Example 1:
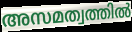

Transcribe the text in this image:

അസമത്വത്തിൽ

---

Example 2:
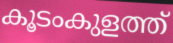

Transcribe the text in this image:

കൂടംകുളത്ത്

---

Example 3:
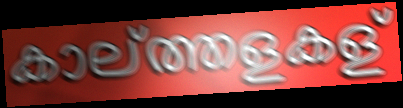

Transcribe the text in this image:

കാല്ത്തളകള്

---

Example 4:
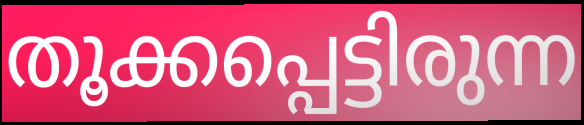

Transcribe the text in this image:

തൂക്കപ്പെട്ടിരുന്ന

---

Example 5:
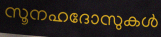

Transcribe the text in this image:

സൂനഹദോസുകൾ